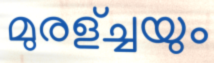
മുരള്ച്ചയും